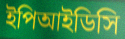
ইপিআইডিসি